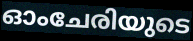
ഓംചേരിയുടെ